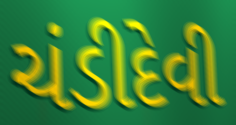
ચંડીદેવી